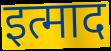
इत्माद